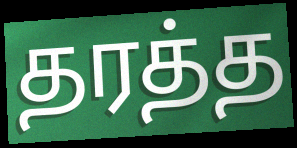
தரத்த